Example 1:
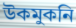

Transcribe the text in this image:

উকমুকনি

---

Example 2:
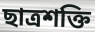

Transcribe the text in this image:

ছাত্ৰশক্তি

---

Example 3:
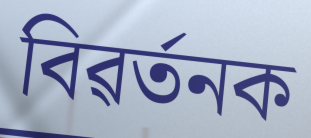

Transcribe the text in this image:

বিৱৰ্তনক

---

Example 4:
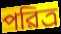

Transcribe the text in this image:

পৱিত্ৰ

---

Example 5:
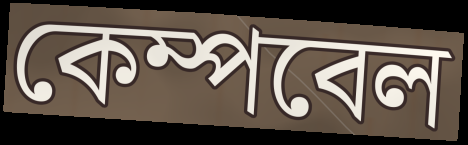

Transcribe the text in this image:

কেম্পবেল